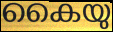
കൈയു